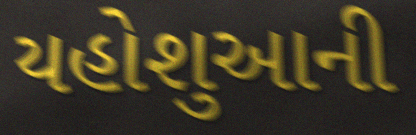
યહોશુઆની